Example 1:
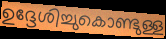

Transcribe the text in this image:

ഉദ്ദേശിച്ചുകൊണ്ടുള്ള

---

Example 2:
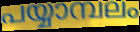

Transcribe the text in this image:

പയ്യാമ്പലം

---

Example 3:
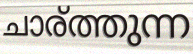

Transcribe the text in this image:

ചാര്ത്തുന്ന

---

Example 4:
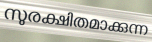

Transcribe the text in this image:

സുരക്ഷിതമാക്കുന്ന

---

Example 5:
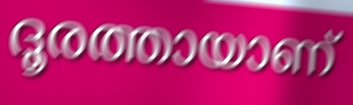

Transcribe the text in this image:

ദൂരത്തായാണ്